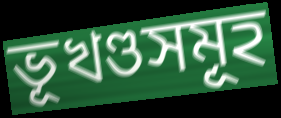
ভূখণ্ডসমূহ